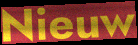
Nieuw